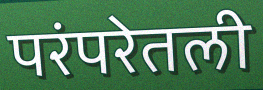
परंपरेतली